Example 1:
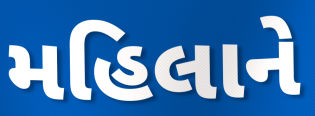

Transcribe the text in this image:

મહિલાને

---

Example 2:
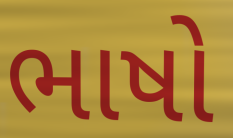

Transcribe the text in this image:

ભાષો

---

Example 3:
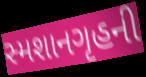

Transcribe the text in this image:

સ્મશાનગૃહની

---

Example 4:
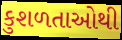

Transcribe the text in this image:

કુશળતાઓથી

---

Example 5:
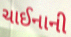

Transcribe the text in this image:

ચાઈનાની